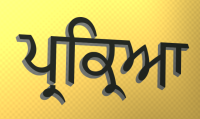
ਪ੍ਰਕ੍ਰਿਆ